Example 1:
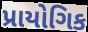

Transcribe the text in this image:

પ્રાયોગિક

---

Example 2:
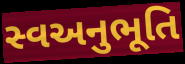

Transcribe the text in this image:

સ્વઅનુભૂતિ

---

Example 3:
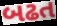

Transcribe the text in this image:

બઢત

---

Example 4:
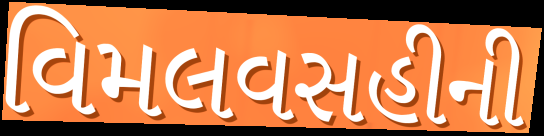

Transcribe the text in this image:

વિમલવસહીની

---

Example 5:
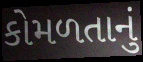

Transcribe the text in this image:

કોમળતાનું